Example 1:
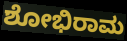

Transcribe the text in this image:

ಶೋಭಿರಾಮ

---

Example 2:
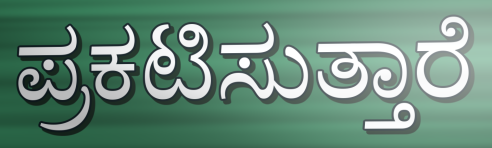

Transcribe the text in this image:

ಪ್ರಕಟಿಸುತ್ತಾರೆ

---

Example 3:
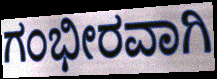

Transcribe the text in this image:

ಗಂಭೀರವಾಗಿ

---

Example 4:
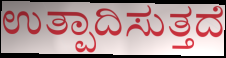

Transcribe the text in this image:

ಉತ್ಪಾದಿಸುತ್ತದೆ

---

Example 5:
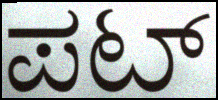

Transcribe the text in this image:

ಪಟ್